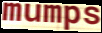
mumps